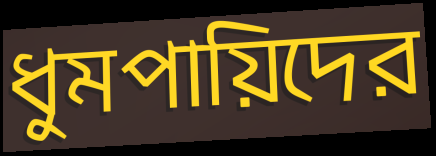
ধুমপায়িদের